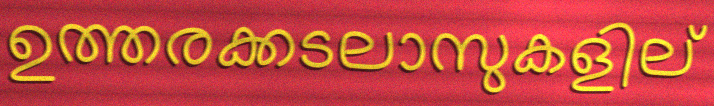
ഉത്തരക്കടലാസുകളില്